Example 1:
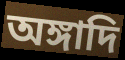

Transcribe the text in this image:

অঙ্গাদি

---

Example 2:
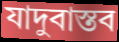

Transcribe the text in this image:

যাদুবাস্তব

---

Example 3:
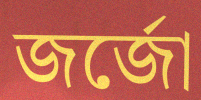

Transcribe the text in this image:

জর্জো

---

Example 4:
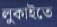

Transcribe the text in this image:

লুকাইতে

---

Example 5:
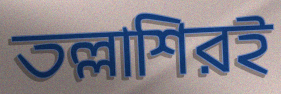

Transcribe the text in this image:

তল্লাশিরই